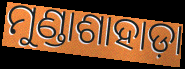
ମୁଣ୍ଡାଶାହାଡ଼ା